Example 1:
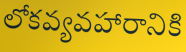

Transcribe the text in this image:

లోకవ్యవహారానికి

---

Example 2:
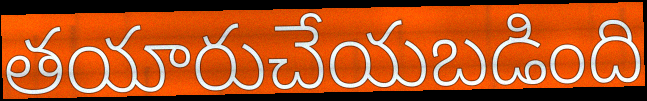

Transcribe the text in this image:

తయారుచేయబడింది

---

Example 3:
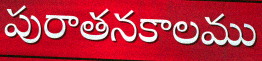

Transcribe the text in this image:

పురాతనకాలము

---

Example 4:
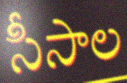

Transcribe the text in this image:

సీసాల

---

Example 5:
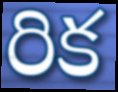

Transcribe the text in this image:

రిక